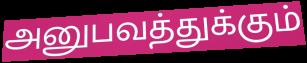
அனுபவத்துக்கும்